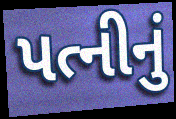
પત્નીનું